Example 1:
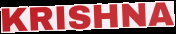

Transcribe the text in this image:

KRISHNA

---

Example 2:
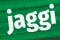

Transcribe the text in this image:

jaggi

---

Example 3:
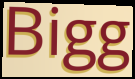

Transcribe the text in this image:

Bigg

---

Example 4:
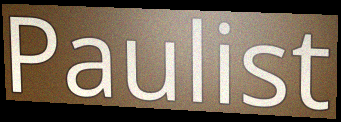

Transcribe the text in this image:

Paulist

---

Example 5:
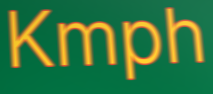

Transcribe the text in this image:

Kmph